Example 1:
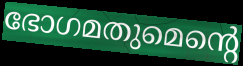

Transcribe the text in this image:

ഭോഗമതുമെന്റെ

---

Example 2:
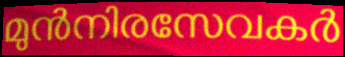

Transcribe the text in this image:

മുൻനിരസേവകർ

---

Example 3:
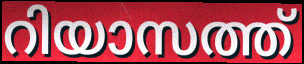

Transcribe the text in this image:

റിയാസത്ത്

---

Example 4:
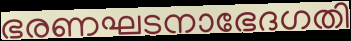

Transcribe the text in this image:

ഭരണഘടനാഭേദഗതി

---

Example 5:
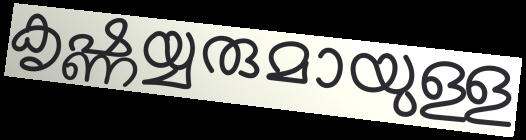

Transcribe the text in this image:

കൃഷ്ണയ്യരുമായുള്ള